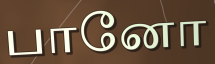
பானோ